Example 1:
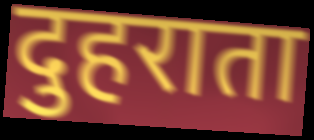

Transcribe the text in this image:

दुहराता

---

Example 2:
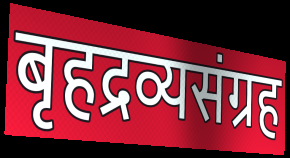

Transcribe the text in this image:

बृहद्रव्यसंग्रह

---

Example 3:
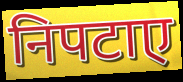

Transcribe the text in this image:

निपटाए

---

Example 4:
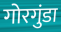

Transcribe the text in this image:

गोरगुंडा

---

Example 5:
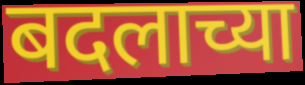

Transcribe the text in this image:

बदलाच्या